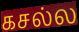
கசல்ல